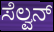
ಸೆಲ್ವನ್